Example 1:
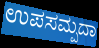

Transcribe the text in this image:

ಉಪಸಮ್ಪದಾ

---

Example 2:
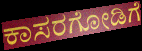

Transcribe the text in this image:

ಕಾಸರಗೋಡಿಗೆ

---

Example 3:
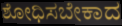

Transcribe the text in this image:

ಶೋಧಿಸಬೇಕಾದ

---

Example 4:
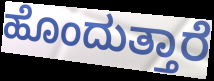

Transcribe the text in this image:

ಹೊಂದುತ್ತಾರೆ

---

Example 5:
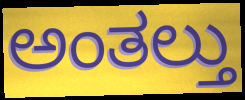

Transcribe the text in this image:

ಅಂತಲ್ತು